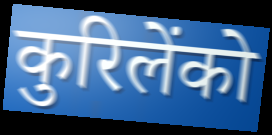
कुरिलेंको